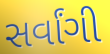
સર્વાંગી